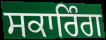
ਸਕਾਰਿੰਗ